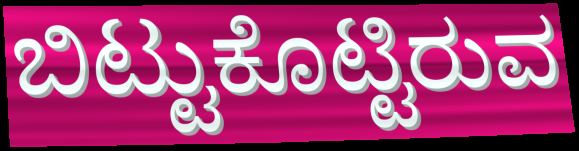
ಬಿಟ್ಟುಕೊಟ್ಟಿರುವ